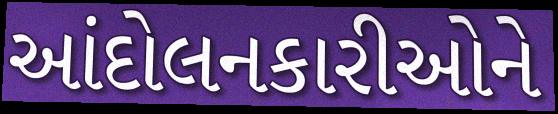
આંદોલનકારીઓને